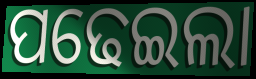
ପଢେଇଲା